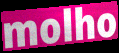
molho